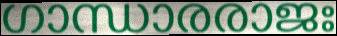
ഗാന്ധാരരാജഃ